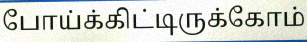
போய்க்கிட்டிருக்கோம்